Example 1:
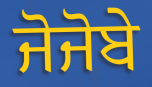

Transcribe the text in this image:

ਜੋਜੋਬੇ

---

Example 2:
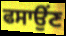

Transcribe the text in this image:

ਫਸਾਉਂਣ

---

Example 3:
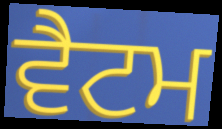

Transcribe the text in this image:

ਵੈਟਮ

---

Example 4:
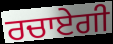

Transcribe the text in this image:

ਰਚਾਏਗੀ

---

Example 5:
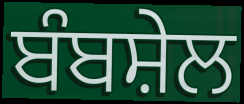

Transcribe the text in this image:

ਬੰਬਸ਼ੇਲ